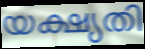
യക്ഷ്യതി